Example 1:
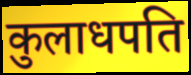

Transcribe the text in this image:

कुलाधपति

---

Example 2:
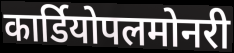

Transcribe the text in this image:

कार्डियोपलमोनरी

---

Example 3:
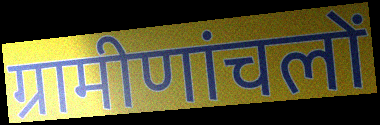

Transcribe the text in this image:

ग्रामीणांचलों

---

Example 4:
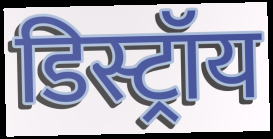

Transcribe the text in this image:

डिस्ट्रॉय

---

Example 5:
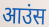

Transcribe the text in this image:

आउंस